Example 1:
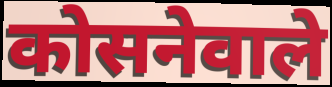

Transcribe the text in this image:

कोसनेवाले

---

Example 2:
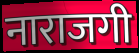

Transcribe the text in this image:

नाराजगी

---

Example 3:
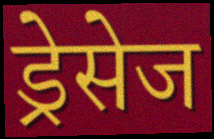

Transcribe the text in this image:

ड्रेसेज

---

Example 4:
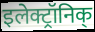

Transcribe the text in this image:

इलेक्ट्रॉनिक्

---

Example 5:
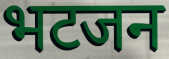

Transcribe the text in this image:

भटजन